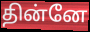
தின்னே